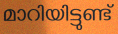
മാറിയിട്ടുണ്ട്